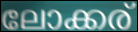
ലോക്കര്